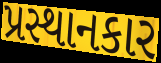
પ્રસ્થાનકાર